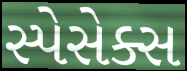
સ્પેસેક્સ